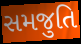
સમજુતિ